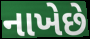
નાખેછે